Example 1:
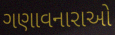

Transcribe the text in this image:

ગણાવનારાઓ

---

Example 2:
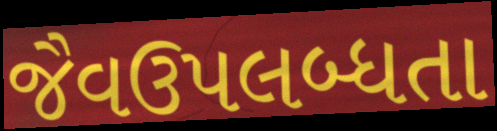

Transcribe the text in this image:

જૈવઉપલબ્ધતા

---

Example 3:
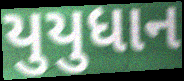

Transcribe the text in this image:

યુયુધાન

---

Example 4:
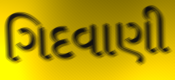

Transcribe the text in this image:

ગિદવાણી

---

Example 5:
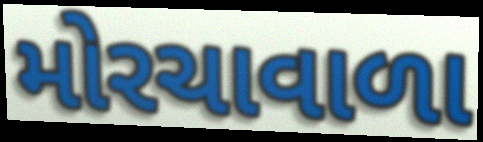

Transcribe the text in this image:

મોરચાવાળા